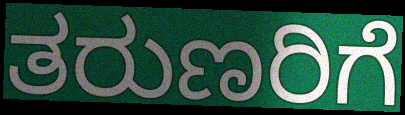
ತರುಣರಿಗೆ